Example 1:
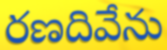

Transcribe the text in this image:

రణదివేను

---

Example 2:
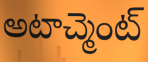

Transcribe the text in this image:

అటాచ్మెంట్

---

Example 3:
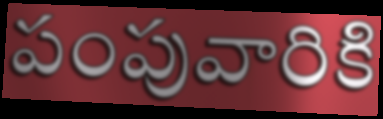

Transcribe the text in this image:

పంపువారికి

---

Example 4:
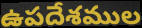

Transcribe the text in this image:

ఉపదేశముల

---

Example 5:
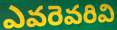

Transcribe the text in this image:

ఎవరెవరివి